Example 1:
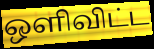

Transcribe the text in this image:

ஒளிவிட்ட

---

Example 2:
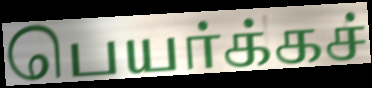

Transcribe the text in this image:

பெயர்க்கச்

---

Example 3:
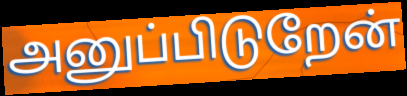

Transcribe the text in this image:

அனுப்பிடுறேன்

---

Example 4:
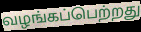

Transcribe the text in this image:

வழங்கப்பெற்றது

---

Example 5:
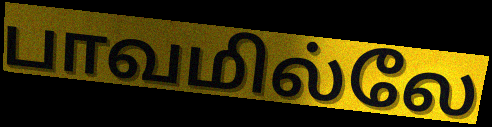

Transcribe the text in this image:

பாவமில்லே